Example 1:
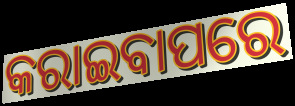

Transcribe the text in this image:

କରାଇବାପରେ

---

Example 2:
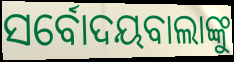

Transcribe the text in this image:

ସର୍ବୋଦୟବାଲାଙ୍କୁ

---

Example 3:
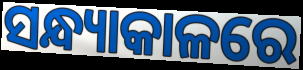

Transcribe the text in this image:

ସନ୍ଧ୍ୟାକାଳରେ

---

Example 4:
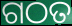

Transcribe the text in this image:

ଗଠତ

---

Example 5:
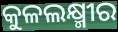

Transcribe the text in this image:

କୁଳଲକ୍ଷ୍ମୀର